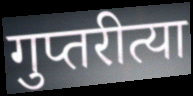
गुप्तरीत्या